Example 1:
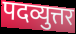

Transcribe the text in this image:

पदव्युत्तर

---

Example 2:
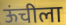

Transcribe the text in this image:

ऊंचीला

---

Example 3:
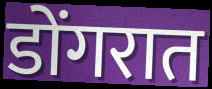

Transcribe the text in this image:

डोंगरात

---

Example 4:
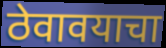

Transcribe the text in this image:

ठेवावयाचा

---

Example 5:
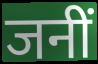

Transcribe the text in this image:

जनीं